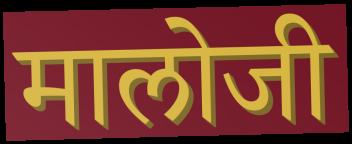
मालोजी